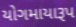
યોગમાયારૂપ